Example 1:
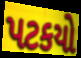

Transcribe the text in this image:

પટકયો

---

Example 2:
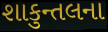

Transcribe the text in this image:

શાકુન્તલના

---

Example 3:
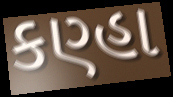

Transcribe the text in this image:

કણ્હા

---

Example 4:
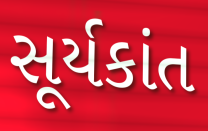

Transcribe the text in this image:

સૂર્યકાંત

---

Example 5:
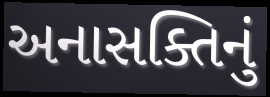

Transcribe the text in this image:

અનાસક્તિનું